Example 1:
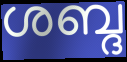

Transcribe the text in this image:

ശബ്ദ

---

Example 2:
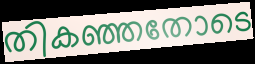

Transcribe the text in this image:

തികഞ്ഞതോടെ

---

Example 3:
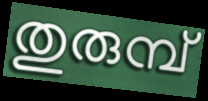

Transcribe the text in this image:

തുരുമ്പ്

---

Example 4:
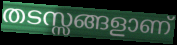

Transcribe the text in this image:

തടസ്സങ്ങളാണ്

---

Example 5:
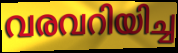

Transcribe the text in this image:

വരവറിയിച്ച